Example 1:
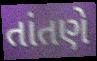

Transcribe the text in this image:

તાંતણે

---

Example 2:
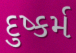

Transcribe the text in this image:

દુષ્કર્મ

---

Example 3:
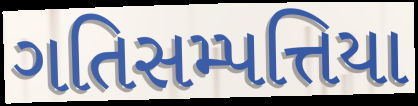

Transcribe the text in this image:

ગતિસમ્પત્તિયા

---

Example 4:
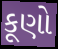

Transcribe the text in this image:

કૂણો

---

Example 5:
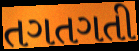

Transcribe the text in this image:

તગતગતી